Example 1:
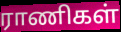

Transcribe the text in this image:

ராணிகள்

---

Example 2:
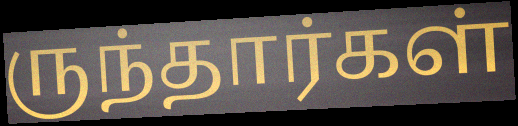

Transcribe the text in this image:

ருந்தார்கள்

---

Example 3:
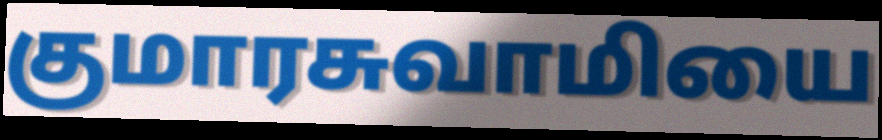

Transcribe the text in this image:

குமாரசுவாமியை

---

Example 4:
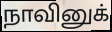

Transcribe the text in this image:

நாவினுக்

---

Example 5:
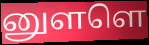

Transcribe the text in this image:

னுளளெ